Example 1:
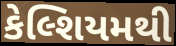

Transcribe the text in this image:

કેલ્શિયમથી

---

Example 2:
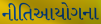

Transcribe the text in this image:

નીતિઆયોગના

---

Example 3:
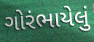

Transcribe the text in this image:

ગોરંભાયેલું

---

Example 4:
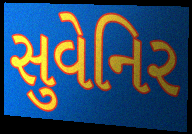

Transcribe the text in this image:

સુવેનિર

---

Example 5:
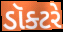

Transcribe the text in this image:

ડૉક્ટરે